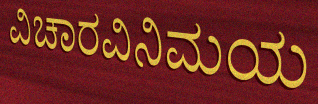
ವಿಚಾರವಿನಿಮಯ